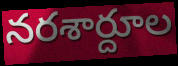
నరశార్దూల